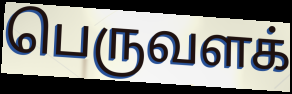
பெருவளக்